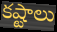
కష్టాలు